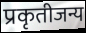
प्रकृतीजन्य